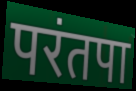
परंतपा